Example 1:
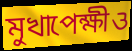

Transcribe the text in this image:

মুখাপেক্ষীও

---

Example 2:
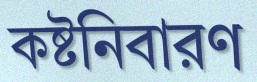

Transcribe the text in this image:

কষ্টনিবারণ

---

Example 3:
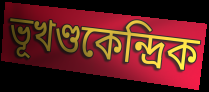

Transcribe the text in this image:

ভূখণ্ডকেন্দ্রিক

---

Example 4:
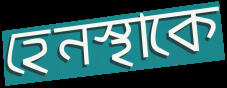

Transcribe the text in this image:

হেনস্থাকে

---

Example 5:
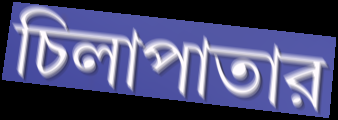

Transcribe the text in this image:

চিলাপাতার